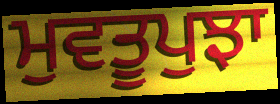
ਮੁਵਤੂਪੁਝਾ